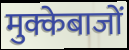
मुक्केबाजों